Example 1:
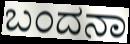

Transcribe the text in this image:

ಬಂದನಾ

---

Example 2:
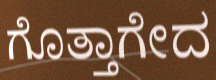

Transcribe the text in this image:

ಗೊತ್ತಾಗೇದ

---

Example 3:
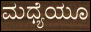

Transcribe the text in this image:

ಮಧ್ಯೆಯೂ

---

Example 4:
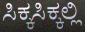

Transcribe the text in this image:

ಸಿಕ್ಕಸಿಕ್ಕಲ್ಲಿ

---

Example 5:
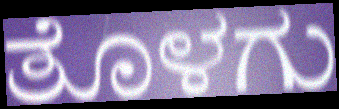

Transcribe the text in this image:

ತೊಳಗು